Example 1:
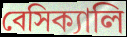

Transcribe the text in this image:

বেসিক্যালি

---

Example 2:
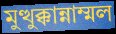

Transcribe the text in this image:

মুত্থুক্কান্নাম্মল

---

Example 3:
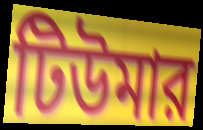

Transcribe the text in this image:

টিউমার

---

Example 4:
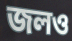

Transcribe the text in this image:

জলও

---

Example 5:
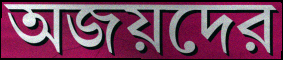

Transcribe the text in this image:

অজয়দের